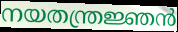
നയതന്ത്രജ്ഞൻ